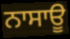
ਨਾਸਾਊ